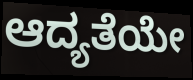
ಆದ್ಯತೆಯೇ